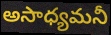
అసాధ్యమనీ